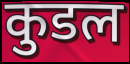
कुडल